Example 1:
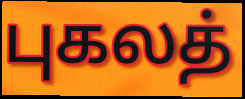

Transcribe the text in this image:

புகலத்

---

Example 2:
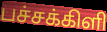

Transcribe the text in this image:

பச்சக்கிளி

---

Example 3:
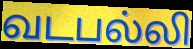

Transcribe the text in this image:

வடபல்லி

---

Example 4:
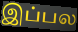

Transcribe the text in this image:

இப்பல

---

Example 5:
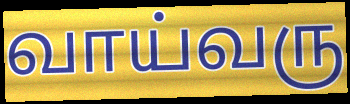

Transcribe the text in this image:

வாய்வரு